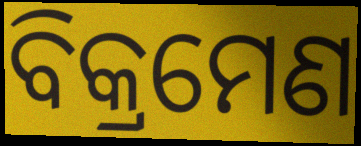
ବିକ୍ରମେଣ